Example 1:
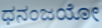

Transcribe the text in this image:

ಧನಂಜಯೋ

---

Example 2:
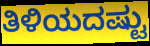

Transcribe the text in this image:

ತಿಳಿಯದಷ್ಟು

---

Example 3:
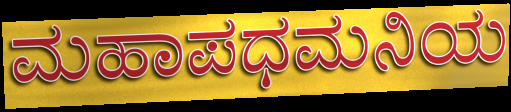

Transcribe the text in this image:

ಮಹಾಪಧಮನಿಯ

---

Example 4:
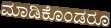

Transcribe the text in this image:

ಮಾಡಿಕೊಂಡರೂ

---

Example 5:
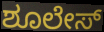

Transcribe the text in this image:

ಶೂಲೇಸ್